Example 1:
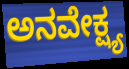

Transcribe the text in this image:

ಅನವೇಕ್ಷ್ಯ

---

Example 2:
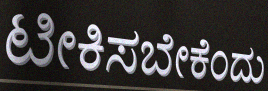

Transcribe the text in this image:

ಟೀಕಿಸಬೇಕೆಂದು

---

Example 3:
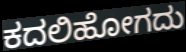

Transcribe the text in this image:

ಕದಲಿಹೋಗದು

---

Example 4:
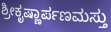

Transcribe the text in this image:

ಶ್ರೀಕೃಷ್ಣಾರ್ಪಣಮಸ್ತು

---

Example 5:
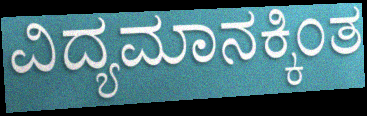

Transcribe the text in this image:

ವಿದ್ಯಮಾನಕ್ಕಿಂತ